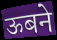
ऊबने